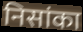
निसांका